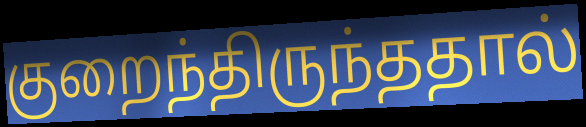
குறைந்திருந்ததால்